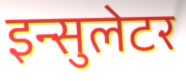
इन्सुलेटर